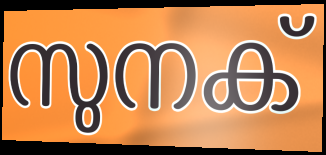
സുനക്